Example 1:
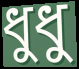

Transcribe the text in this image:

ধুধু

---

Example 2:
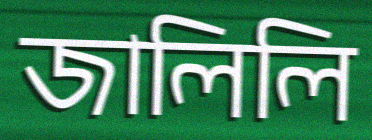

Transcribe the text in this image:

জালিলি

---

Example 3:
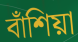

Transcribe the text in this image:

বাঁশিয়া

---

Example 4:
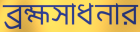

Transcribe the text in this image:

ব্রহ্মসাধনার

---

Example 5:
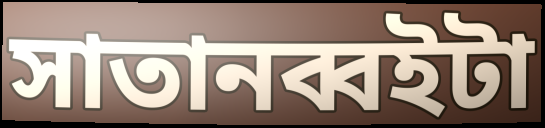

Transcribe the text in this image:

সাতানব্বইটা